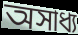
অসাধ্য